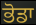
ਭੋਡਾ